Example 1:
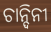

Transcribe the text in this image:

ଚାନ୍ଦିନୀ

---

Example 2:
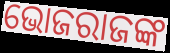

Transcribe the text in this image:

ଭୋଜରାଜଙ୍କ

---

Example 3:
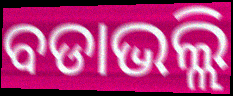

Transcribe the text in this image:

ବଡାଭଲ୍ଲି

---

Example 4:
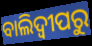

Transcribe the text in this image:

ବାଲିଦ୍ୱୀପରୁ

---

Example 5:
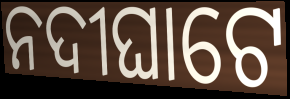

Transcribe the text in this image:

ନଦୀଘାଟେ